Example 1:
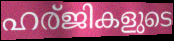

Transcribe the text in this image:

ഹര്ജികളുടെ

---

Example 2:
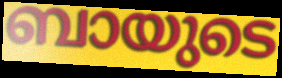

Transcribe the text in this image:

ബായുടെ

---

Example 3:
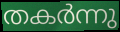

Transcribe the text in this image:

തകർന്നു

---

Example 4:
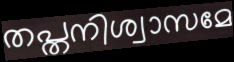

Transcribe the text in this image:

തപ്തനിശ്വാസമേ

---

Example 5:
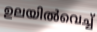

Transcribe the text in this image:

ഉലയിൽവെച്ച്